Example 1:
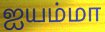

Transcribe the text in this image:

ஐயம்மா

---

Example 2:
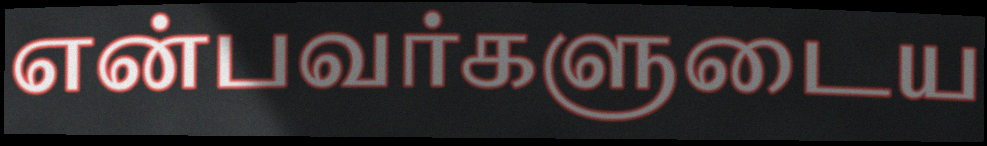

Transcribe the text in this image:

என்பவர்களுடைய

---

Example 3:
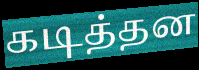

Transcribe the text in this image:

கடித்தன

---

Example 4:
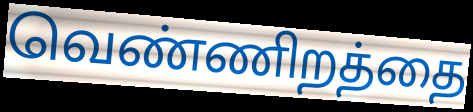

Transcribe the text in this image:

வெண்ணிறத்தை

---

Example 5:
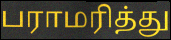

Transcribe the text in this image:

பராமரித்து